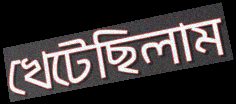
খেটেছিলাম